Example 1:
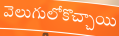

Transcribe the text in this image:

వెలుగులోకొచ్చాయి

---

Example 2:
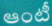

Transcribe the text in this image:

ఆంటీ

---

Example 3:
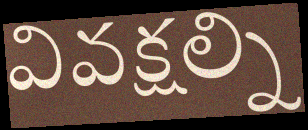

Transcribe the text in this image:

వివక్షల్ని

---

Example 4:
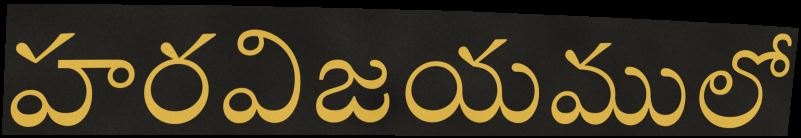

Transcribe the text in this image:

హరవిజయములో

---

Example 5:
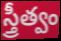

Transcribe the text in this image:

స్త్రీత్వం